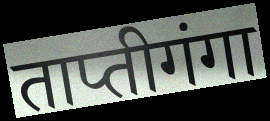
ताप्तीगंगा